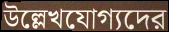
উল্লেখযোগ্যদের